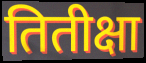
तितीक्षा